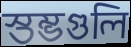
স্তম্ভগুলি